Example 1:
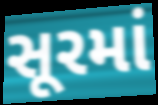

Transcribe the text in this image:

સૂરમાં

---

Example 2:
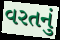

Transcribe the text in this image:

વરતનું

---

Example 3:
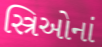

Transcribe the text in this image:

સ્ત્રિઓનાં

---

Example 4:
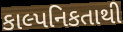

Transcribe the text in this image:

કાલ્પનિકતાથી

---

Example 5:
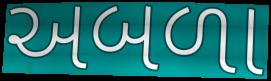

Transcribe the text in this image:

અબળા